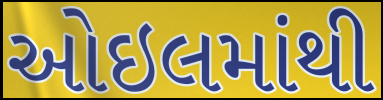
ઓઇલમાંથી